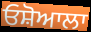
ਓਸ਼ੋਆਲਾ